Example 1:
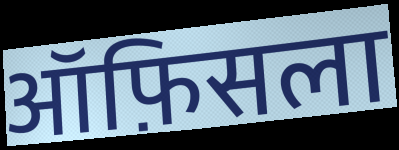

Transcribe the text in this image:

ऑफ़िसला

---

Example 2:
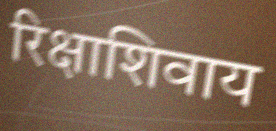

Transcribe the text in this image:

रिक्षाशिवाय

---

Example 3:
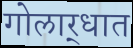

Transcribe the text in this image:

गोलार्धात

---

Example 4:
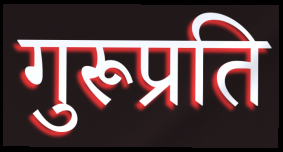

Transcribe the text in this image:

गुरूप्रति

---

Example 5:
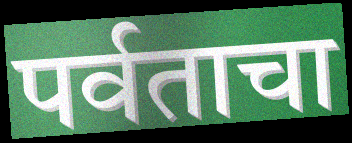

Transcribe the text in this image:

पर्वताचा